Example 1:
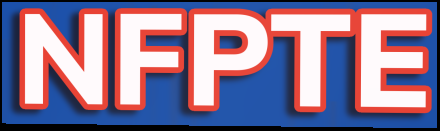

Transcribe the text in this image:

NFPTE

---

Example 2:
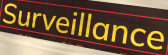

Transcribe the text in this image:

Surveillance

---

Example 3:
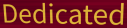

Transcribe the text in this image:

Dedicated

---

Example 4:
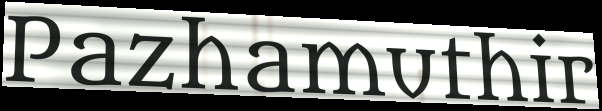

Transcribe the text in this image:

Pazhamuthir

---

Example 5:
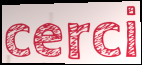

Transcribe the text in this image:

cerci